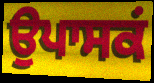
ਉਪਾਸਕਂ